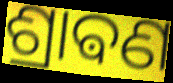
ଶ୍ରାଵଣ